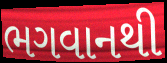
ભગવાનથી